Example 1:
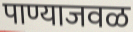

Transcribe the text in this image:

पाण्याजवळ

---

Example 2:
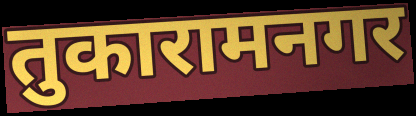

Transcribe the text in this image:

तुकारामनगर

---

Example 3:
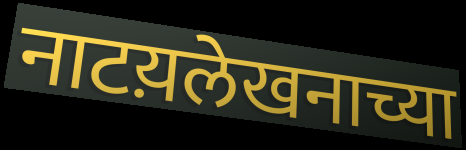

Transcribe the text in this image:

नाटय़लेखनाच्या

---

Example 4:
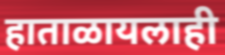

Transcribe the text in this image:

हाताळायलाही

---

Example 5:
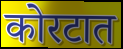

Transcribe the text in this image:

कोरटात